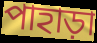
পাহাড়া